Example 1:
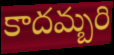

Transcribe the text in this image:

కాదమ్బరి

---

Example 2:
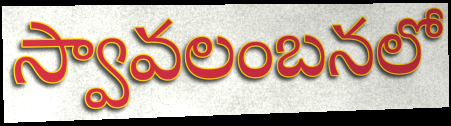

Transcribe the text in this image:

స్వావలంబనలో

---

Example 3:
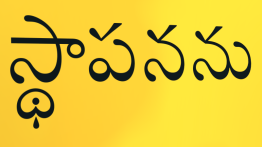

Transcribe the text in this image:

స్థాపనను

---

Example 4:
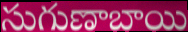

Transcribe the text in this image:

సుగుణాబాయి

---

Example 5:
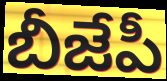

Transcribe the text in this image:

బీజేపీ